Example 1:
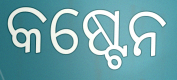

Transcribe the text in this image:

କଷ୍ଟେନ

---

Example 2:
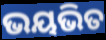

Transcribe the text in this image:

ଭୟଭିତ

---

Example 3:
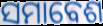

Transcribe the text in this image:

ସମାବେଶ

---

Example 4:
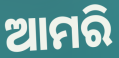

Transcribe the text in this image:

ଆମରି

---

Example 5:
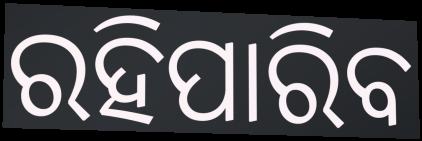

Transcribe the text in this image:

ରହିପାରିବ